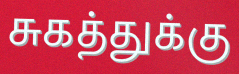
சுகத்துக்கு